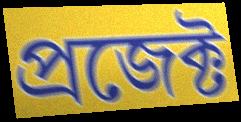
প্ৰজেক্ট